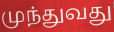
முந்துவது